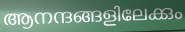
ആനന്ദങ്ങളിലേക്കും